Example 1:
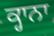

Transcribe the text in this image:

ਕ੍ਹਾਨਾ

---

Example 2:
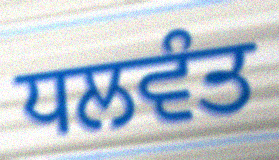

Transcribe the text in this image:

ਧਲਵੰਤ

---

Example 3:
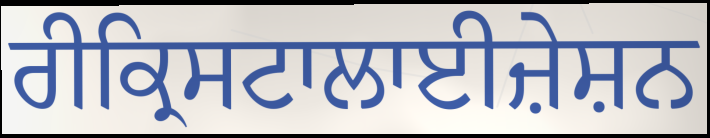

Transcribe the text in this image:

ਰੀਕ੍ਰਿਸਟਾਲਾਈਜ਼ੇਸ਼ਨ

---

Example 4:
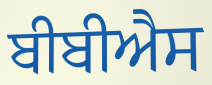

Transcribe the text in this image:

ਬੀਬੀਐਸ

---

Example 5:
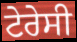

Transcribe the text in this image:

ਟੇਰੇਸੀ